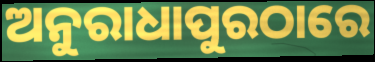
ଅନୁରାଧାପୁରଠାରେ